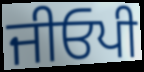
ਜੀਓਪੀ